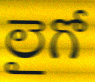
లైగో